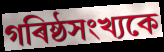
গৰিষ্ঠসংখ্যকে